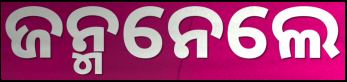
ଜନ୍ମନେଲେ